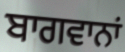
ਬਾਗਵਾਨਾਂ